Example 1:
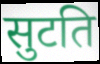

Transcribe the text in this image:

सुटति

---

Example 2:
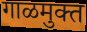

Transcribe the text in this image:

गाळमुक्त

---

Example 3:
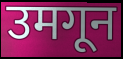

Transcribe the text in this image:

उमगून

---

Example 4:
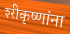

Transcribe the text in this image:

श्रीकृष्णांना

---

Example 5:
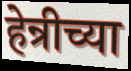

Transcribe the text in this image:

हेन्रीच्या